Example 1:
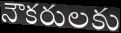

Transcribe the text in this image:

నౌకరులకు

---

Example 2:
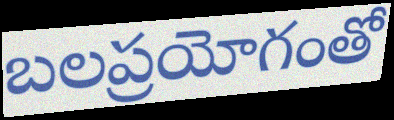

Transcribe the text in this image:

బలప్రయోగంతో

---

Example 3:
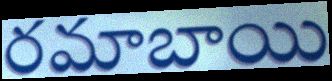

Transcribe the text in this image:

రమాబాయి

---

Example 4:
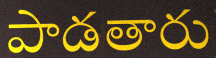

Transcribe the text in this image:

పాడతారు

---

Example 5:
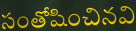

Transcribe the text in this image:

సంతోషించినవి